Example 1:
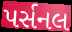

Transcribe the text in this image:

પર્સનલ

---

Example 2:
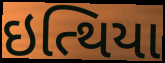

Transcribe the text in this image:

ઇત્થિયા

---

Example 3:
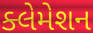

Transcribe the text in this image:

ક્લેમેશન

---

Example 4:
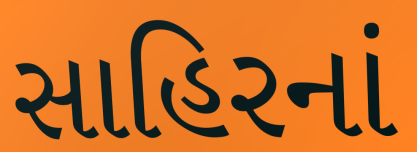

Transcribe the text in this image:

સાહિરનાં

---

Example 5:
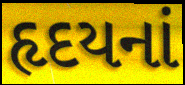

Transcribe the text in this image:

હૃદયનાં